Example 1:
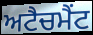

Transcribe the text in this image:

ਅਟੈਚਮੈਂਟ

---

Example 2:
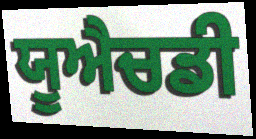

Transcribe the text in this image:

ਯੂਐਚਡੀ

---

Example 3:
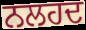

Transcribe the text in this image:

ਨਲਹਦ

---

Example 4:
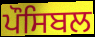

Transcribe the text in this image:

ਪੌਸਿਬਲ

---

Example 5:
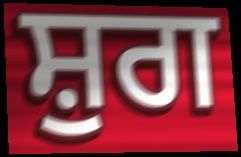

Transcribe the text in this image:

ਸ਼ੁਗ